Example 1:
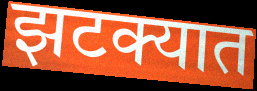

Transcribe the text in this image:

झटक्‍यात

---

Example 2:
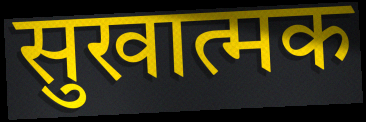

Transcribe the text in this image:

सुखात्मक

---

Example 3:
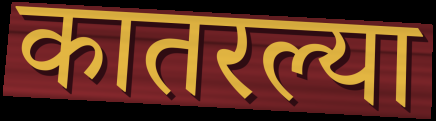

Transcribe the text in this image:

कातरल्या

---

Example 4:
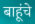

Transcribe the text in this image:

बाहूंचे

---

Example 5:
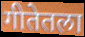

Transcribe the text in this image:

गीतेतला